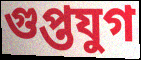
গুপ্তযুগ